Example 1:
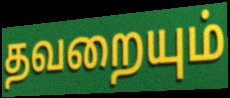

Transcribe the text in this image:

தவறையும்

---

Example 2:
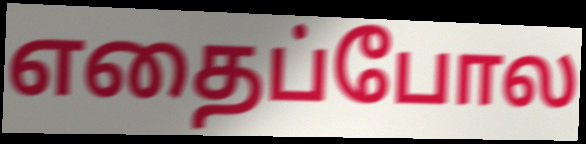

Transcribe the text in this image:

எதைப்போல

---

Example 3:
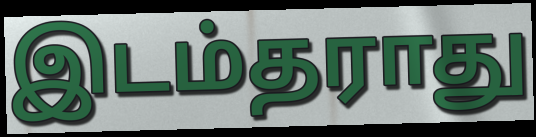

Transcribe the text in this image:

இடம்தராது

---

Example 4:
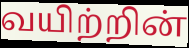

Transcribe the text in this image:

வயிற்றின்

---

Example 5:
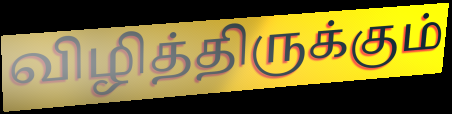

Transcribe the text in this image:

விழித்திருக்கும்